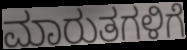
ಮಾರುತಗಳಿಗೆ